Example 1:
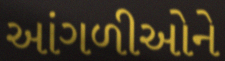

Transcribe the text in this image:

આંગળીઓને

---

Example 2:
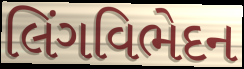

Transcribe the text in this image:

લિંગવિભેદન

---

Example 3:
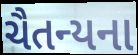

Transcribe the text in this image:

ચૈતન્યના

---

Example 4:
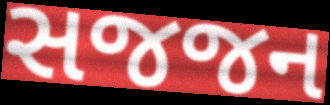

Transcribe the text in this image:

સજજન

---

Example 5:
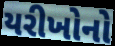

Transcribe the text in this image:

યરીખોનો